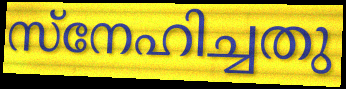
സ്നേഹിച്ചതു